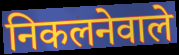
निकलनेवाले